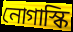
নোগাস্কি